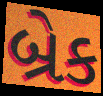
બ્રેક